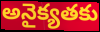
అనైక్యతకు